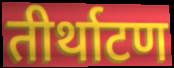
तीर्थाटण